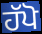
ਹੱਪੋ